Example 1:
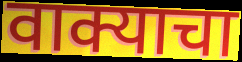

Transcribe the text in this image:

वाक्याचा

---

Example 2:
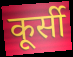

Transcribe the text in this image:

कूर्सी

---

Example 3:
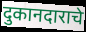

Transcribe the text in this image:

दुकानदाराचे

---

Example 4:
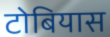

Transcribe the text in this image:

टोबियास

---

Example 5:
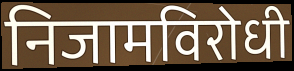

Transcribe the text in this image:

निजामविरोधी